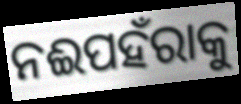
ନଈପହଁରାକୁ